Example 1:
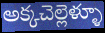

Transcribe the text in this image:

అక్కచెల్లెళ్ళూ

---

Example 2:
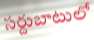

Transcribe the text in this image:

సర్దుబాటులో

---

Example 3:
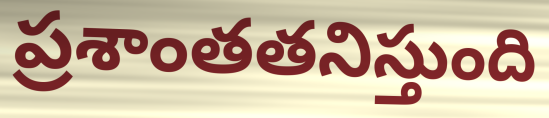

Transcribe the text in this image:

ప్రశాంతతనిస్తుంది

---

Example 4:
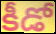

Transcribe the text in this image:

కీడో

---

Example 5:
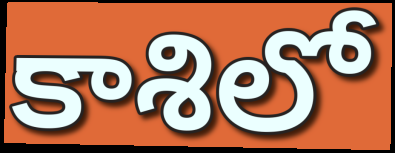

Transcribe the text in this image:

కాశిలో